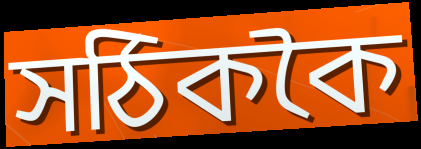
সঠিককৈ